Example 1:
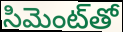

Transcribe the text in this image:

సిమెంట్‌తో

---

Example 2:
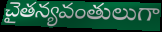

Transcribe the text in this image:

చైతన్యవంతులుగా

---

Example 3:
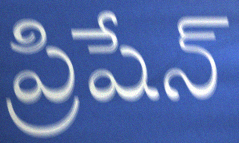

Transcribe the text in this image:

ప్రిషేన్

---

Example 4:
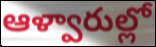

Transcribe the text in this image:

ఆళ్వారుల్లో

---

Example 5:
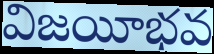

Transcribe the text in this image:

విజయీభవ